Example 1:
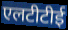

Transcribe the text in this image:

एलटीटीई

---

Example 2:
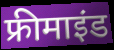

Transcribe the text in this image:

फ्रीमाइंड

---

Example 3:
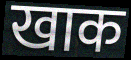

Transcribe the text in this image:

खाक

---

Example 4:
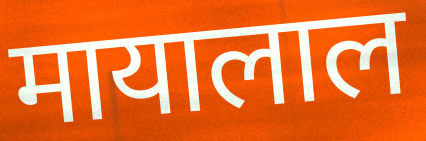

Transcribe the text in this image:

मायालाल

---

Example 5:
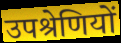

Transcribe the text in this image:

उपश्रेणियों